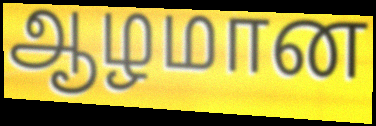
ஆழமான